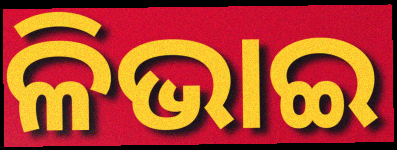
ଳିଭାଇ